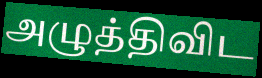
அழுத்திவிட